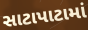
સાટાપાટામાં